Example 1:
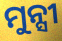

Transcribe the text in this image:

ମୁନ୍ସୀ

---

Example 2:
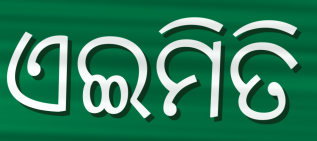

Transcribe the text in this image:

ଏଇମିତି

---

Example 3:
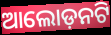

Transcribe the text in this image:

ଆଲୋଡ଼ନଟି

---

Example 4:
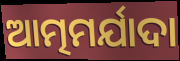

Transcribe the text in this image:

ଆତ୍ମମର୍ଯାଦା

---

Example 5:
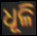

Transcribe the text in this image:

ଧୂଳି